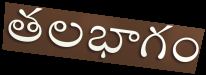
తలభాగం